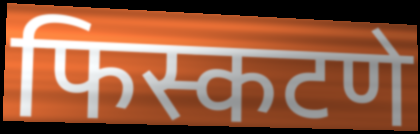
फिस्कटणे